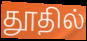
தூதில்